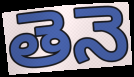
తెనె